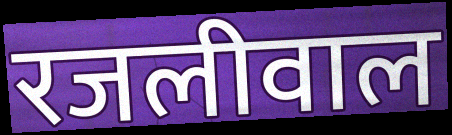
रजलीवाल